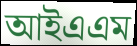
আইএএম